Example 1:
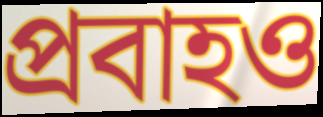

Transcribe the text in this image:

প্রবাহও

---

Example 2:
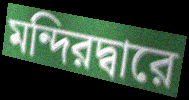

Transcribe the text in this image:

মন্দিরদ্বারে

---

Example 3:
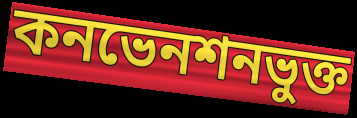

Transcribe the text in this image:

কনভেনশনভুক্ত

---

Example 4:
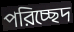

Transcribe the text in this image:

পরিচ্ছেদ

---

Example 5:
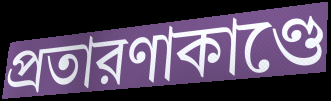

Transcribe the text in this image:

প্রতারণাকাণ্ডে